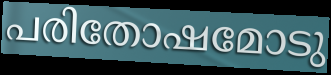
പരിതോഷമോടു